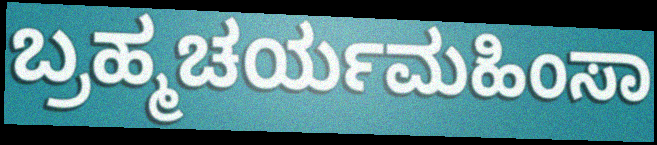
ಬ್ರಹ್ಮಚರ್ಯಮಹಿಂಸಾ